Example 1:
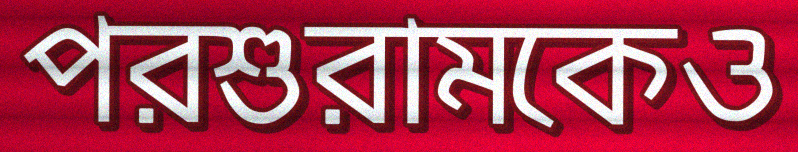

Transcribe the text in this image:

পরশুরামকেও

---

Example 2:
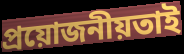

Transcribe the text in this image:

প্রয়োজনীয়তাই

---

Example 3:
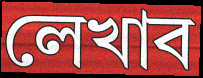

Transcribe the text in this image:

লেখাব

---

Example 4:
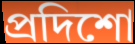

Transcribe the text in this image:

প্রদিশো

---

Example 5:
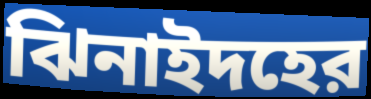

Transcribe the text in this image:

ঝিনাইদহের